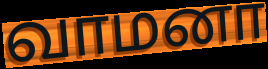
வாமனா